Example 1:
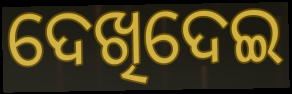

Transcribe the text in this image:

ଦେଖିଦେଇ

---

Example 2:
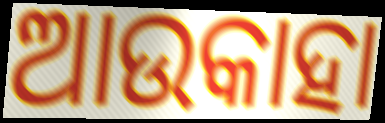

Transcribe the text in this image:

ଆଉକାହା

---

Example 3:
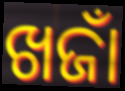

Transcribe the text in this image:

ଖଜାଁ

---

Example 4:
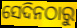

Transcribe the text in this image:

ସେଦିନଠାରୁ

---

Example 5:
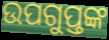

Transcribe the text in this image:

ଉପଗୁପ୍ତଙ୍କ